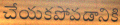
చేయకపోవడానికి